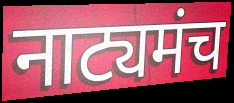
नाट्यमंच